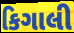
કિગાલી